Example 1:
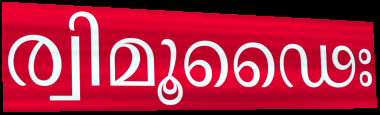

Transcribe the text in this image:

ര്വിമൂഢൈഃ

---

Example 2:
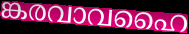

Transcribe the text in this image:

ങ്കരവാവഹൈ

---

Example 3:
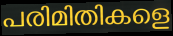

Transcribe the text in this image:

പരിമിതികളെ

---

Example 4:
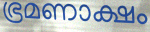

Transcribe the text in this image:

ഭ്രമണാക്ഷം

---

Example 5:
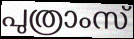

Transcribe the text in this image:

പുത്രാംസ്